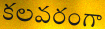
కలవరంగా